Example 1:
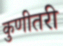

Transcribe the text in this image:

कुणीतरी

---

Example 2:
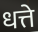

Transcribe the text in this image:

धत्ते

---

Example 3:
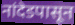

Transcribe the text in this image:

नांदेडपासून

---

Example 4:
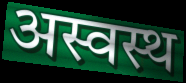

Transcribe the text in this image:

अस्वस्थ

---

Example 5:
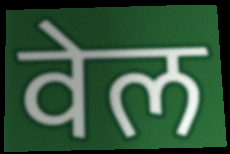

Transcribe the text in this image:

वेल